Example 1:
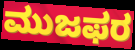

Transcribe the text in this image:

ಮುಜಫರ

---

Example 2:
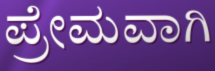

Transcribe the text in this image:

ಪ್ರೇಮವಾಗಿ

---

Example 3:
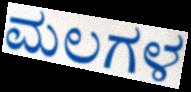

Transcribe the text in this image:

ಮಲಗಳ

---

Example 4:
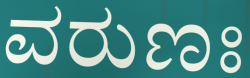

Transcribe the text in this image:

ವರುಣಃ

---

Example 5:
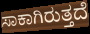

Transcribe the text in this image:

ಸಾಕಾಗಿರುತ್ತದೆ